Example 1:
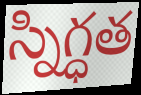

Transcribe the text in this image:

స్నిగ్ధత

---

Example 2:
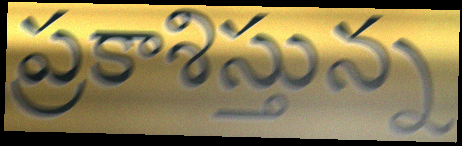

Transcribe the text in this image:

ప్రకాశిస్తున్న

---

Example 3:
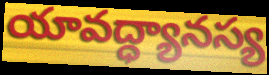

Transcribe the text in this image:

యావద్ధ్యానస్య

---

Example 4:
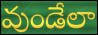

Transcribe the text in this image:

వుండేలా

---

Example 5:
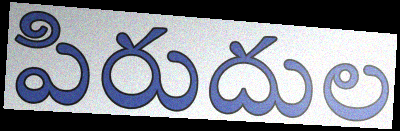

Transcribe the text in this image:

పిరుదుల